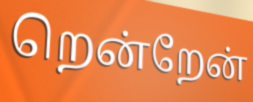
றென்றேன்